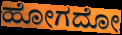
ಹೋಗದೋ